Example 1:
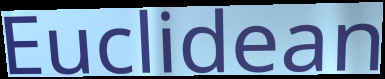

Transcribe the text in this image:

Euclidean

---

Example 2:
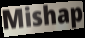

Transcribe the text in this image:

Mishap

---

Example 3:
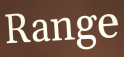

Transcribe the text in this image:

Range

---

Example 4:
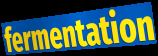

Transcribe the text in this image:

fermentation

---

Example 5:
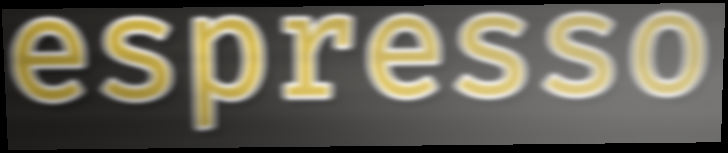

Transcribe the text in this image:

espresso